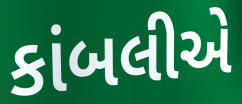
કાંબલીએ